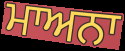
ਮਾਅਨਾ